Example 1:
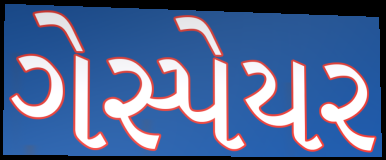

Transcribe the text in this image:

ગેસ્પેયર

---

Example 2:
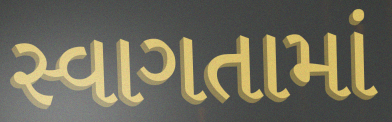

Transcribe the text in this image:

સ્વાગતામાં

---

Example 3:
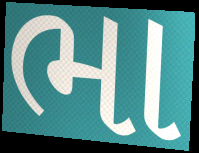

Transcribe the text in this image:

ભા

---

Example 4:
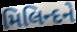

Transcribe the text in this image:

મિલિન્દને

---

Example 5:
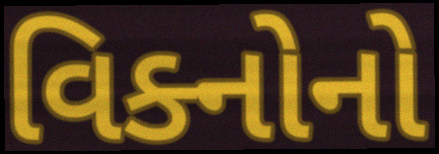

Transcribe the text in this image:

વિક્નોનો